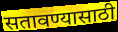
सतावण्यासाठी